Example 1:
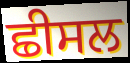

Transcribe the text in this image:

ਛੀਸਲ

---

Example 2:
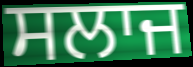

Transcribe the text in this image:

ਸਲਾਜ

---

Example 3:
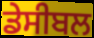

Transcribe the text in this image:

ਡੇਸੀਬਲ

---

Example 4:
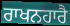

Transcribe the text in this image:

ਰਾਖਨਹਾਰੈ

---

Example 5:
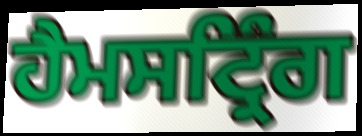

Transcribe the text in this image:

ਹੈਮਸਟ੍ਰਿੰਗ